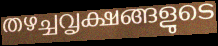
തഴച്ചവൃക്ഷങ്ങളുടെ